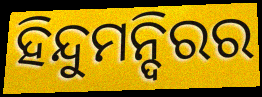
ହିନ୍ଦୁମନ୍ଦିରର